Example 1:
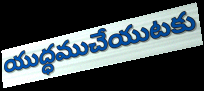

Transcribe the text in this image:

యుద్ధముచేయుటకు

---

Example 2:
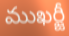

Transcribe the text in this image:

ముఖర్జీ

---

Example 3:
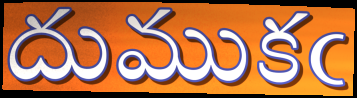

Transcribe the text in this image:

దుముకఁ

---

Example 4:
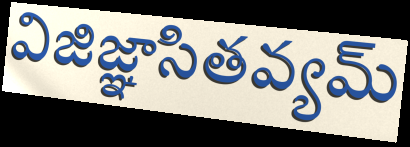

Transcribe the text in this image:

విజిజ్ఞాసితవ్యమ్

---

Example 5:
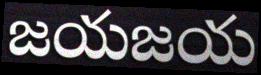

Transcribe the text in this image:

జయజయ